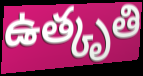
ఉత్కృతి